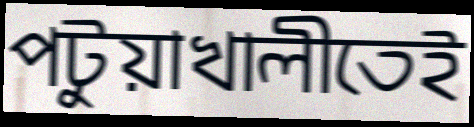
পটুয়াখালীতেই